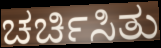
ಚರ್ಚಿಸಿತು